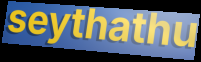
seythathu